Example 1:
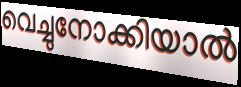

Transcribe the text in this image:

വെച്ചുനോക്കിയാൽ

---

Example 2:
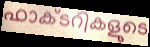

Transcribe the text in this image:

ഫാക്ടറികളുടെ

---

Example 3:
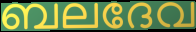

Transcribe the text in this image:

ബലദേവ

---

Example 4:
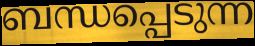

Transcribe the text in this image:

ബന്ധപ്പെടുന്ന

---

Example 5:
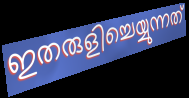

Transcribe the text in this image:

ഇതരുളിച്ചെയ്യുന്നത്